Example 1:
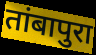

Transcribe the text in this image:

तांबापुरा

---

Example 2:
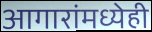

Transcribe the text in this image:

आगारांमध्येही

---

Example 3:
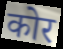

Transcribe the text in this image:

कोर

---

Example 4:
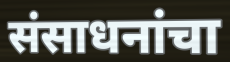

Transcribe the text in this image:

संसाधनांचा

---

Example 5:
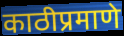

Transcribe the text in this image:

काठीप्रमाणे